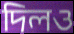
দিলও